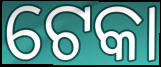
ଟେକା